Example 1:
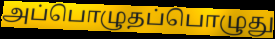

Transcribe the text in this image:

அப்பொழுதப்பொழுது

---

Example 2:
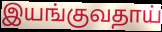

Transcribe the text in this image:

இயங்குவதாய்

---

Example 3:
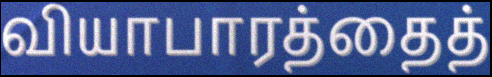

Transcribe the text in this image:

வியாபாரத்தைத்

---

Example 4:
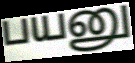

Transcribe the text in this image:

பயனு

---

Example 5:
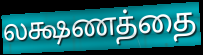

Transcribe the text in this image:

லக்ஷணத்தை